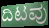
ದಿಟವು